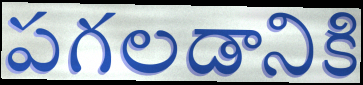
పగలడానికి